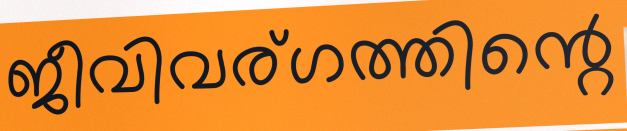
ജീവിവര്ഗത്തിന്റെ